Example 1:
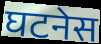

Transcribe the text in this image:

घटनेस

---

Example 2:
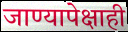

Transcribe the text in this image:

जाण्यापेक्षाही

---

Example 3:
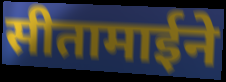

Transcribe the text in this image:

सीतामाईने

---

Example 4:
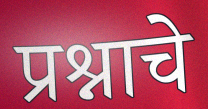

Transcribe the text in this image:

प्रश्नाचे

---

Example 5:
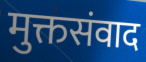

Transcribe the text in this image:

मुक्तसंवाद